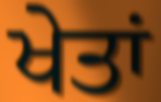
ਖੇਤਾਂ